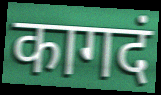
कागदं